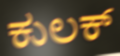
ಕುಲಕ್